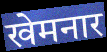
खेमनार